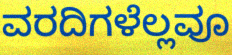
ವರದಿಗಳೆಲ್ಲವೂ